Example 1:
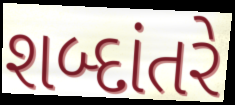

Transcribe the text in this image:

શબ્દાંતરે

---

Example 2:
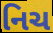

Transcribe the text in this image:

નિચ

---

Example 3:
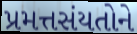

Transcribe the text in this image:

પ્રમત્તસંયતોને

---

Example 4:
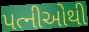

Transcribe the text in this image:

પત્નીઓથી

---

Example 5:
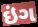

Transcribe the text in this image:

ઇંગ